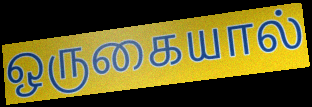
ஒருகையால்